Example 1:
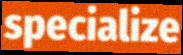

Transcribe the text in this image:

specialize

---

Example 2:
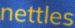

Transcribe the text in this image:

nettles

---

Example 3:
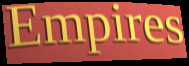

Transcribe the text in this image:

Empires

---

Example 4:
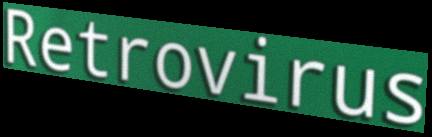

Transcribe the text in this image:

Retrovirus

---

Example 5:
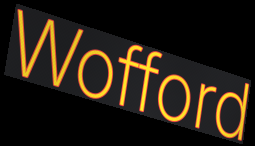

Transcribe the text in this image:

Wofford